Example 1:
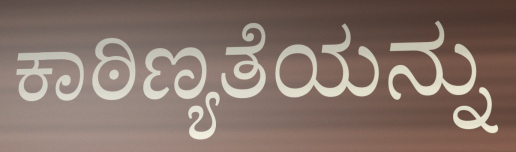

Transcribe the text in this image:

ಕಾಠಿಣ್ಯತೆಯನ್ನು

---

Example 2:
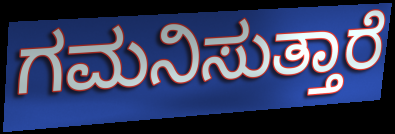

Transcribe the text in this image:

ಗಮನಿಸುತ್ತಾರೆ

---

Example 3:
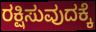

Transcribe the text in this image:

ರಕ್ಷಿಸುವುದಕ್ಕೆ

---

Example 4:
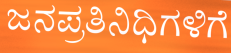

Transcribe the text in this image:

ಜನಪ್ರತಿನಿಧಿಗಳಿಗೆ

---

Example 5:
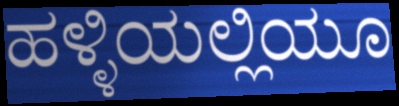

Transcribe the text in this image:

ಹಳ್ಳಿಯಲ್ಲಿಯೂ